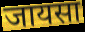
जायसा